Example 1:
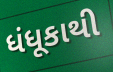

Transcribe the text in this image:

ધંધૂકાથી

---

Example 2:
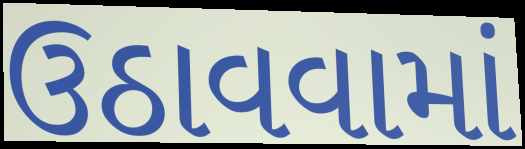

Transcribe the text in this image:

ઉઠાવવામાં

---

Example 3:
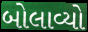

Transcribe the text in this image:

બોલાવ્યો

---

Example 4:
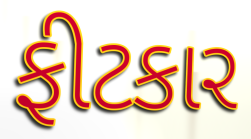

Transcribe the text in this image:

ફીટકાર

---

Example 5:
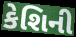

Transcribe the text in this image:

કેશિની